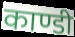
काण्डी